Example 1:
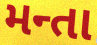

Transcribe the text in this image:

મન્તા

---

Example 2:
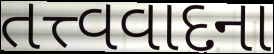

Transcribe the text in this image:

તત્ત્વવાદના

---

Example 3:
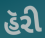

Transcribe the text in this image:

હૅરી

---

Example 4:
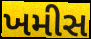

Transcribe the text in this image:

ખમીસ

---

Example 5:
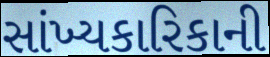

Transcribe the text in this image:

સાંખ્યકારિકાની